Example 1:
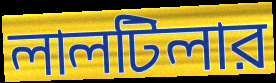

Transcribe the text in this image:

লালটিলার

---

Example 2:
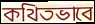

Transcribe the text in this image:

কথিতভাবে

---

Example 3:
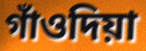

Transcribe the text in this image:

গাঁওদিয়া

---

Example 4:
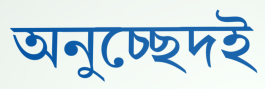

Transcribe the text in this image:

অনুচ্ছেদই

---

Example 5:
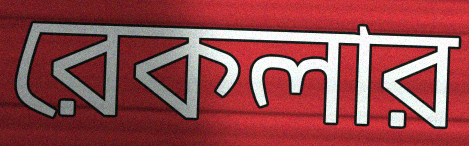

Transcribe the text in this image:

রেকলার